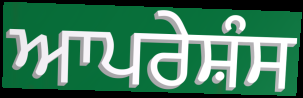
ਆਪਰੇਸ਼ੰਸ